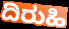
ದಿರುಹಿ